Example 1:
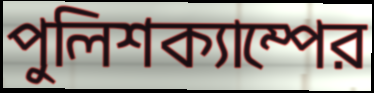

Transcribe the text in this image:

পুলিশক্যাম্পের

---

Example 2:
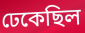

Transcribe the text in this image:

ঢেকেছিল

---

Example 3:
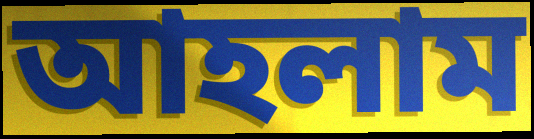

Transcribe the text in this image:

আহলাম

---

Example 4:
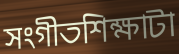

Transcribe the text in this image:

সংগীতশিক্ষাটা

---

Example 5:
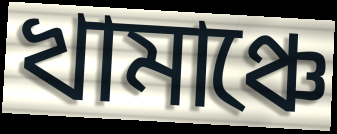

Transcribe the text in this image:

খামাঞ্চে